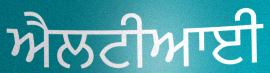
ਐਲਟੀਆਈ